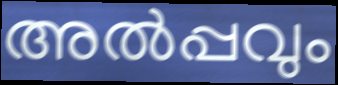
അൽപ്പവും